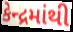
કેન્દ્રમાંથી